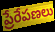
ప్రేరేపణలు